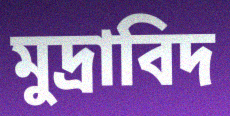
মুদ্ৰাবিদ